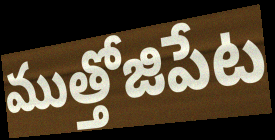
ముత్తోజిపేట